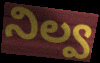
నిల్వ